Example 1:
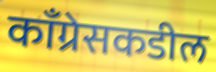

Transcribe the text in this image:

काँग्रेसकडील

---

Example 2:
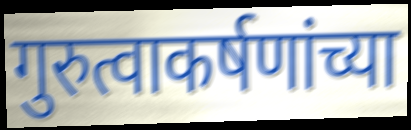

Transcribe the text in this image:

गुरुत्वाकर्षणांच्या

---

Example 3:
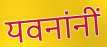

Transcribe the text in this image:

यवनांनीं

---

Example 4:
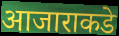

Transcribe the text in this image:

आजाराकडे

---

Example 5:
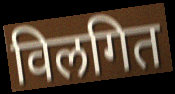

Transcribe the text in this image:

विलगित